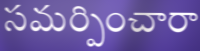
సమర్పించారా